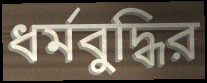
ধর্মবুদ্ধির